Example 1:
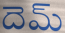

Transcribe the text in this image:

దెమ్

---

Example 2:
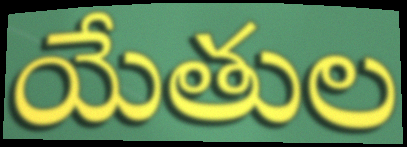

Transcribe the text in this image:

యేతుల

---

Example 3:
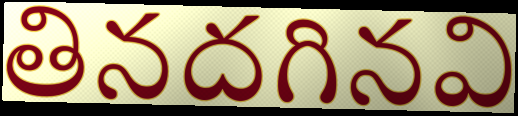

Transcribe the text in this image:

తినదగినవి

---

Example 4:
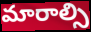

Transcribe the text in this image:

మారాల్సి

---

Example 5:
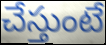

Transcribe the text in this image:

చేస్తుంటే